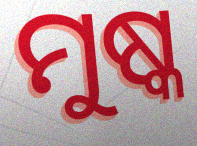
ମୁଷ୍କ